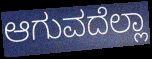
ಆಗುವದೆಲ್ಲಾ